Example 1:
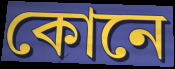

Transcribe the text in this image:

কোনে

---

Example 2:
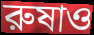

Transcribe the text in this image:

রুষাও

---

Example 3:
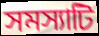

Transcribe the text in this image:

সমস্যাটি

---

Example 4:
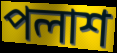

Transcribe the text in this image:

পলাশ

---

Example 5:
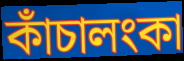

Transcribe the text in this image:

কাঁচালংকা